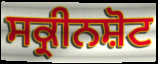
ਸਕ੍ਰੀਨਸ਼ੋਟ